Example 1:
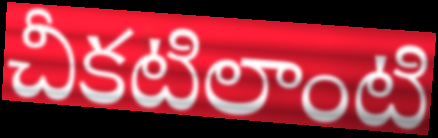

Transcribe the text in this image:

చీకటిలాంటి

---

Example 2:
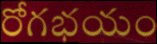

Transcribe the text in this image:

రోగభయం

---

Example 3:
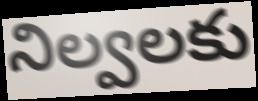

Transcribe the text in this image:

నిల్వలకు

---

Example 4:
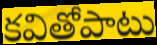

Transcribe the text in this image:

కవితోపాటు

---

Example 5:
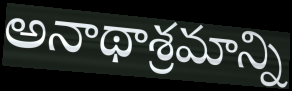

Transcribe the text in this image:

అనాథాశ్రమాన్ని